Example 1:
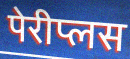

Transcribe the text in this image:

पेरीप्लस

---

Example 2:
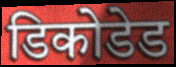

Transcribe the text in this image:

डिकोडेड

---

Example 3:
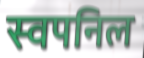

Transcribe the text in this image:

स्वपनिल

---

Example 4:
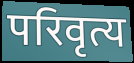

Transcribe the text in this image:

परिवृत्य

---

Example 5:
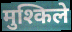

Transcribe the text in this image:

मुश्किले